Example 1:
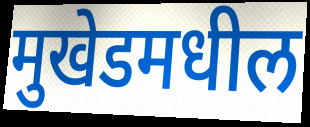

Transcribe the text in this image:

मुखेडमधील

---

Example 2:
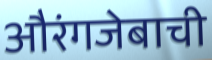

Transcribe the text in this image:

औरंगजेबाची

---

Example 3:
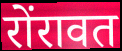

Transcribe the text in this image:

रोंरावत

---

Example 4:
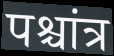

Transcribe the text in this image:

पश्चांत्र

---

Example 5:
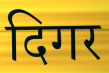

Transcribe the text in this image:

दिगर